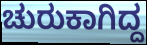
ಚುರುಕಾಗಿದ್ದ